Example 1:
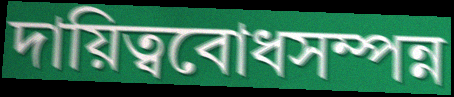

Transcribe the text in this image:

দায়িত্ববোধসম্পন্ন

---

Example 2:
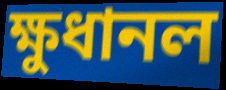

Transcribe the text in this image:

ক্ষুধানল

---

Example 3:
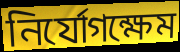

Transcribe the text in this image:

নির্যোগক্ষেম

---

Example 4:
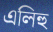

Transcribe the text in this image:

এলিহু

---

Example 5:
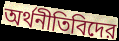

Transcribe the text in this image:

অর্থনীতিবিদের